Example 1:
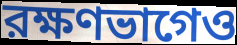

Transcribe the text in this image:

রক্ষণভাগেও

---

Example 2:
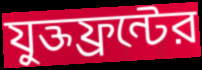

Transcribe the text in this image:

যুক্তফ্রন্টের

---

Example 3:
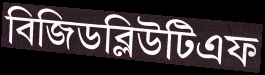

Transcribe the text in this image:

বিজিডব্লিউটিএফ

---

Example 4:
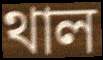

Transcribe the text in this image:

থাল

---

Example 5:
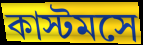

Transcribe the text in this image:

কাস্টমসে